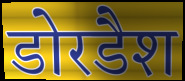
डोरडैश